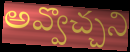
అవ్వొచ్చని